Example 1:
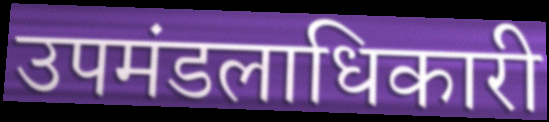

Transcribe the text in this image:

उपमंडलाधिकारी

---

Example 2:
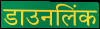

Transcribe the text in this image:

डाउनलिंक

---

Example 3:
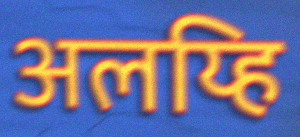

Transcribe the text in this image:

अलय्हि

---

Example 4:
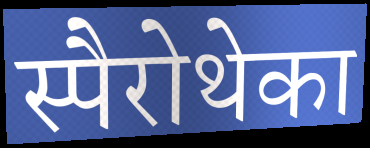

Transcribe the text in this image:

स्पैरोथेका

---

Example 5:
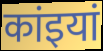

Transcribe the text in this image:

कांइयां